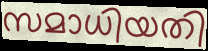
സമാധിയതി